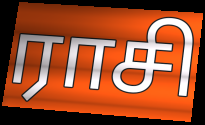
ராசி